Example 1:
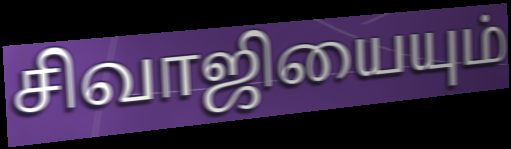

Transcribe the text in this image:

சிவாஜியையும்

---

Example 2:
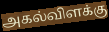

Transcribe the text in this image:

அகல்விளக்கு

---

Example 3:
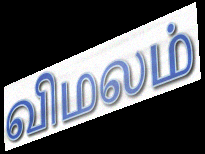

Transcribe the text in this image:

விமலம்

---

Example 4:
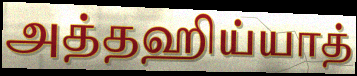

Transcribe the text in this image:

அத்தஹிய்யாத்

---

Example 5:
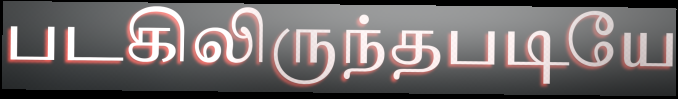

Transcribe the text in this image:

படகிலிருந்தபடியே